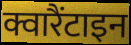
क्वारैंटाइन